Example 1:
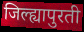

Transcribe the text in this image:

जिल्ह्यापुरती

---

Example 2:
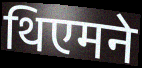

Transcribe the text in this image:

थिएमने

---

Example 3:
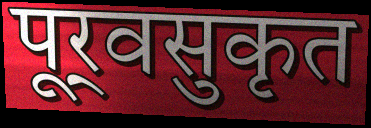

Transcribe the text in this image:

पूर्वसुकृत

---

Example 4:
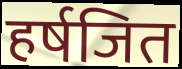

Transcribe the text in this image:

हर्षजित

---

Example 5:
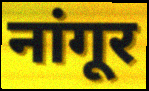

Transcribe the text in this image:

नांगूर